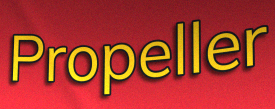
Propeller